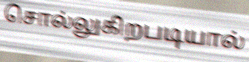
சொல்லுகிறபடியால்